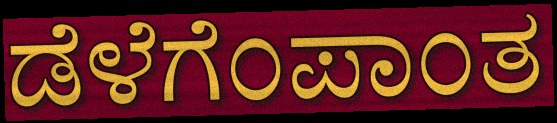
ಡೆಳೆಗೆಂಪಾಂತ